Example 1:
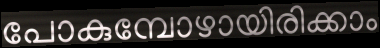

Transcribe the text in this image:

പോകുമ്പോഴായിരിക്കാം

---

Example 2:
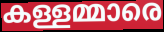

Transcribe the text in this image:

കള്ളമ്മാരെ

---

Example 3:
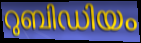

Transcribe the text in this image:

റുബിഡിയം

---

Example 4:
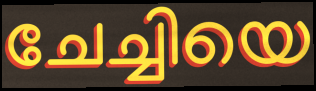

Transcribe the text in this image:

ചേച്ചിയെ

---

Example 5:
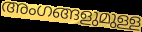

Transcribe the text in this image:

അംഗങ്ങളുമുള്ള